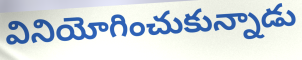
వినియోగించుకున్నాడు